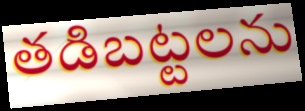
తడిబట్టలను